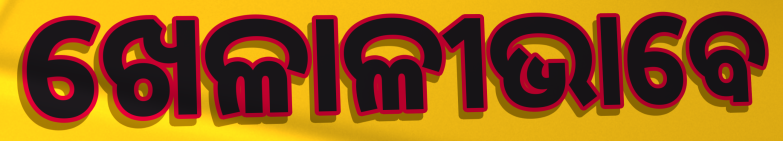
ଖେଳାଳୀଭାବେ